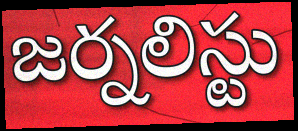
జర్నలిస్టు